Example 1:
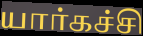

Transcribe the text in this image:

யார்கச்சி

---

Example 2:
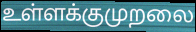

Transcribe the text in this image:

உள்ளக்குமுறலை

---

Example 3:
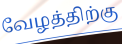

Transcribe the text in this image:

வேழத்திற்கு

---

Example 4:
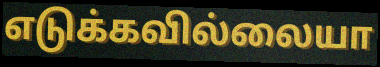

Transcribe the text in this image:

எடுக்கவில்லையா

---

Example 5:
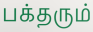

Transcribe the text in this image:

பக்தரும்